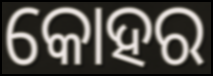
କୋହର